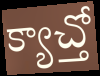
క్యాచ్తో